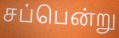
சப்பென்று